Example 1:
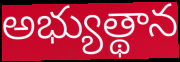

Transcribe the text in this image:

అభ్యుత్థాన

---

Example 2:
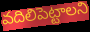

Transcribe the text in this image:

వదిలిపెట్టాలని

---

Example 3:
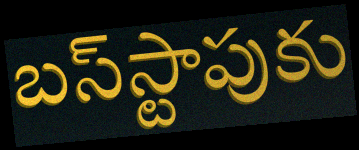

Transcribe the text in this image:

బస్‌స్టాపుకు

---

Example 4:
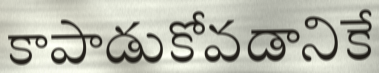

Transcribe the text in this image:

కాపాడుకోవడానికే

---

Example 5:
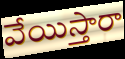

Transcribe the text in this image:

వేయిస్తారా